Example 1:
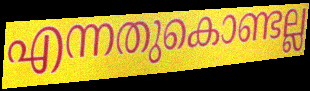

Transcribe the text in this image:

എന്നതുകൊണ്ടല്ല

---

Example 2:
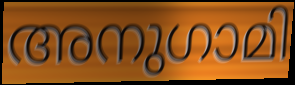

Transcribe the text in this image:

അനുഗാമി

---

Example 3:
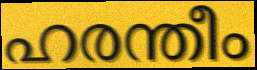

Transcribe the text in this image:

ഹരന്തീം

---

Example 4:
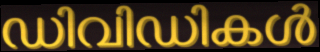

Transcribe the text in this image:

ഡിവിഡികൾ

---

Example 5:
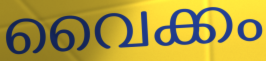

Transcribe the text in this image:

വൈക്കം